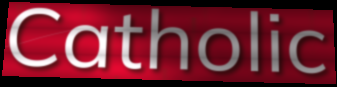
Catholic